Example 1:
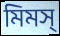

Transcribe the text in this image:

মিমস্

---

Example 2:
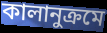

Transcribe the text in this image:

কালানুক্রমে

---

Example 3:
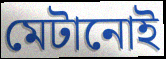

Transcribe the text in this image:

মেটানোই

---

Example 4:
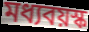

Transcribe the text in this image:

মধ্যবয়স্ক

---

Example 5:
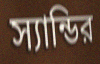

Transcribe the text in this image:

স্যান্ডির